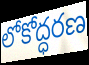
లోకోద్ధరణ